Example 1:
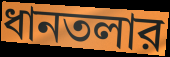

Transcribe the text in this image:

ধানতলার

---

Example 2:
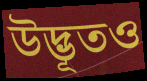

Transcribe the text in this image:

উদ্ভূতও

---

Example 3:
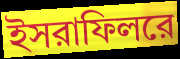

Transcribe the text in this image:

ইসরাফিলরে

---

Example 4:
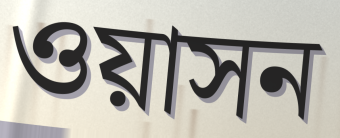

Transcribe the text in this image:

ওয়াসন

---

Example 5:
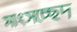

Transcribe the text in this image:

মাংসচ্ছেদ